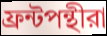
ফ্রন্টপন্থীরা